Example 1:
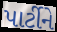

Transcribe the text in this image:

પાર્ટીને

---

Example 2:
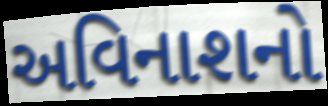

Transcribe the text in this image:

અવિનાશનો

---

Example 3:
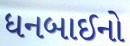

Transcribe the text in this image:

ધનબાઈનો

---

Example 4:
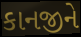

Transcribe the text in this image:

કાનજીને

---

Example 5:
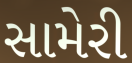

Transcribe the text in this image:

સામેરી